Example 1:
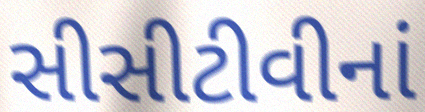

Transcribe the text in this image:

સીસીટીવીનાં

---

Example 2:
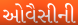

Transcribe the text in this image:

ઓવૈસીની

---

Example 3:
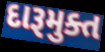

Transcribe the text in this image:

દારૂમુક્ત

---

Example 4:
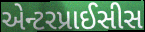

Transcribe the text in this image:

એન્ટરપ્રાઈસીસ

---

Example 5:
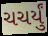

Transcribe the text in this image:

ચચર્યું